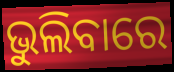
ଭୁଲିବାରେ